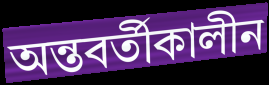
অন্তবর্তীকালীন